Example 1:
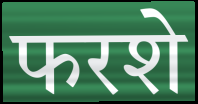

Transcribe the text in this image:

फरशे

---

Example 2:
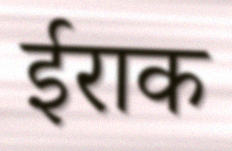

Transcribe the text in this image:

ईराक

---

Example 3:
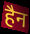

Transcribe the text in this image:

हैन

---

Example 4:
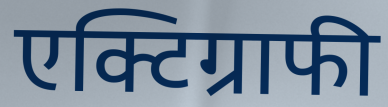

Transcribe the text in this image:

एक्टिग्राफी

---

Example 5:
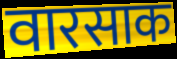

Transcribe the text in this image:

वारसाक